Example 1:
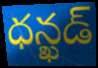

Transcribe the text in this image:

ధన్ఖడ్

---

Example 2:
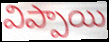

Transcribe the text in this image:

విప్పాయి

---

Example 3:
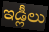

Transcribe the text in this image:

ఇడ్లీలు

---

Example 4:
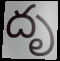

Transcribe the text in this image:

దృ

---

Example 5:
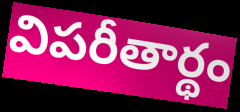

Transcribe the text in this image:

విపరీతార్థం